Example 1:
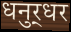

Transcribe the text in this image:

धनुर्धर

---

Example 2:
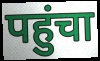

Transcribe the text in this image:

पहुंचा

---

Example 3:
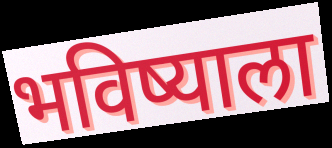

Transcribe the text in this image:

भविष्याला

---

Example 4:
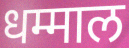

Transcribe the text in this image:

धम्माल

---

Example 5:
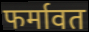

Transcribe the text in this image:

फर्मावत